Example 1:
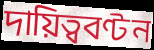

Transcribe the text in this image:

দায়িত্ববণ্টন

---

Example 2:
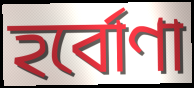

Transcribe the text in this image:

হর্বোণা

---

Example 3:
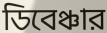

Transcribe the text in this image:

ডিবেঞ্চার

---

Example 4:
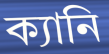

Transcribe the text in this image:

ক্যানি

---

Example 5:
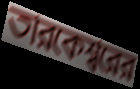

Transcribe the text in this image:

তারকেশ্বরের